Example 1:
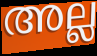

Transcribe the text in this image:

അല്ല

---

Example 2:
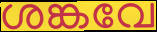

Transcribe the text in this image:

ശങ്കവേ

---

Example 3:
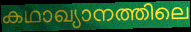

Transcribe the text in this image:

കഥാഖ്യാനത്തിലെ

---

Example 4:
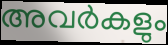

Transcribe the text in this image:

അവർകളും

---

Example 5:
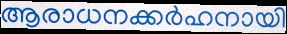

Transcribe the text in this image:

ആരാധനക്കർഹനായി